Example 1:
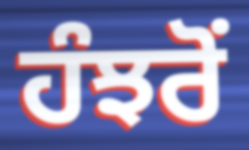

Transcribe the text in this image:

ਹੰਝਰੋਂ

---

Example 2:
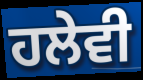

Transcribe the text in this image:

ਹਲੇਵੀ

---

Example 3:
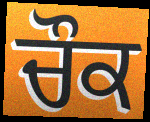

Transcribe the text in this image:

ਚੌਕ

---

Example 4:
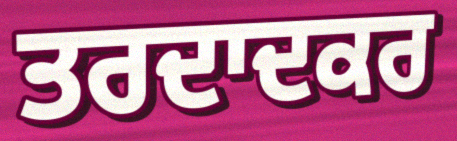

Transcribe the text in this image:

ਤਰਦਾਦਕਰ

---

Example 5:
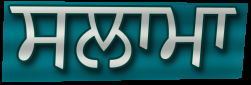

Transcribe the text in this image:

ਸਲਾਮਾ